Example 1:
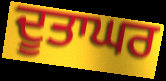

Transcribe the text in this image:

ਦੂਤਾਘਰ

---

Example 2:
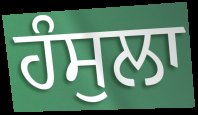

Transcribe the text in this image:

ਹੰਸੁਲਾ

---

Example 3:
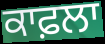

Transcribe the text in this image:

ਕਾਫ਼ਲਾ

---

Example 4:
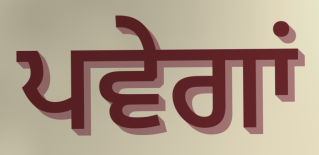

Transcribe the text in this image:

ਪਵੇਗਾਂ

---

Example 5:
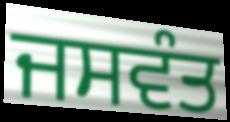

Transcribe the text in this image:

ਜਸਵੰਤ